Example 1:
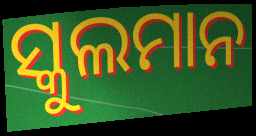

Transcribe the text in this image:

ସ୍କୁଲମାନ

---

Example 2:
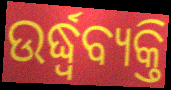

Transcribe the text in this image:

ଉର୍ଦ୍ଧ୍ୱବ୍ୟକ୍ତି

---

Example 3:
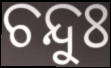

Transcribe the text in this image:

ଚନ୍ଦୁଃ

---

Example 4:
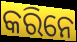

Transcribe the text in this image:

କରିନେ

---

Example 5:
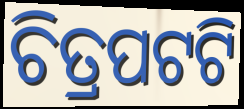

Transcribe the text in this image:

ଚିତ୍ରପଟଟି